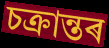
চক্ৰান্তৰ